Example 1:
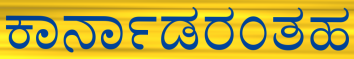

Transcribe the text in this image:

ಕಾರ್ನಾಡರಂತಹ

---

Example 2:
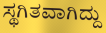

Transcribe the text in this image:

ಸ್ಥಗಿತವಾಗಿದ್ದು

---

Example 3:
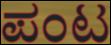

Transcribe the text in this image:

ಪಂಟ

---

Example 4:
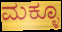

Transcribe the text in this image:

ಮಕ್ಳೂ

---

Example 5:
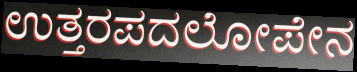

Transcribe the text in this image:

ಉತ್ತರಪದಲೋಪೇನ